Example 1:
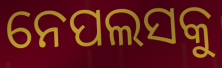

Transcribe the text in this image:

ନେପଲସକୁ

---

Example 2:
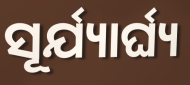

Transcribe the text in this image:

ସୂର୍ଯ୍ୟାର୍ଘ୍ୟ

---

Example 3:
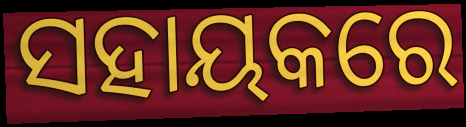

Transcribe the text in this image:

ସହାୟକରେ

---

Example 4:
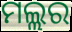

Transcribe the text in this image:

ମଲ୍ଲର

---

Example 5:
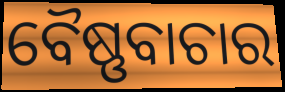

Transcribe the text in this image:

ବୈଷ୍ଣବାଚାର